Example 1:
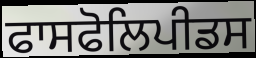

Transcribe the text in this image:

ਫਾਸਫੋਲਿਪੀਡਸ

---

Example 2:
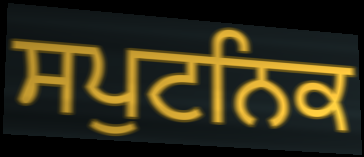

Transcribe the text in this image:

ਸਪੁਟਨਿਕ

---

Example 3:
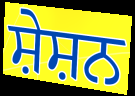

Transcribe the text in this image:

ਸ਼ੇਸ਼ਨ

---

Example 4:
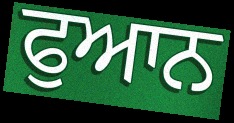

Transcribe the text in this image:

ਫੁਆਨ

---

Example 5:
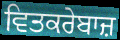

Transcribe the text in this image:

ਵਿਤਕਰੇਬਾਜ਼